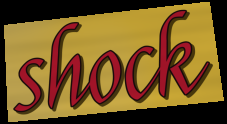
shock